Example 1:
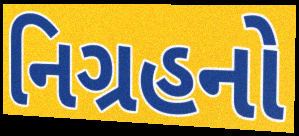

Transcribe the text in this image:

નિગ્રહનો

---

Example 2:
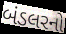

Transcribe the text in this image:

બંડલરનો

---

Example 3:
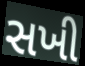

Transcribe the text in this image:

સખી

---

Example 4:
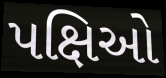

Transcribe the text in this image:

પક્ષિઓ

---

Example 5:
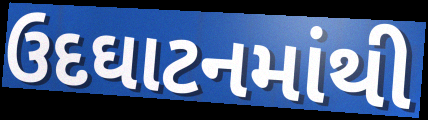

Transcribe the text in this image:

ઉદઘાટનમાંથી